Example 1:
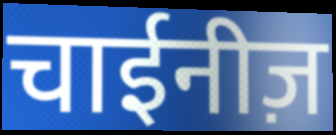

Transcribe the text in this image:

चाईनीज़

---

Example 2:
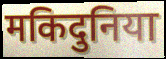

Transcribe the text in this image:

मकिदुनिया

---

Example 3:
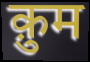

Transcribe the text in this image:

क़ुम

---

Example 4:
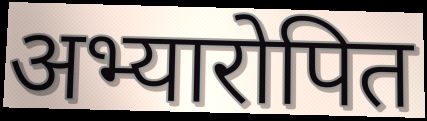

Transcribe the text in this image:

अभ्यारोपित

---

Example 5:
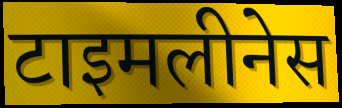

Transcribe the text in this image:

टाइमलीनेस